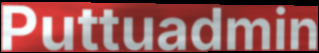
Puttuadmin